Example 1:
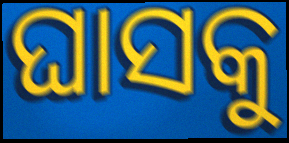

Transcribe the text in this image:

ଘାସକୁ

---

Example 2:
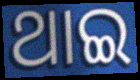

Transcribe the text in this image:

ଥାଇ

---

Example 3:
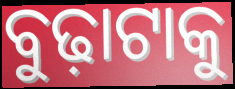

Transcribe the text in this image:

ବୁଢ଼ାଟାକୁ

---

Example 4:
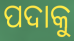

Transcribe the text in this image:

ପଦାକୁ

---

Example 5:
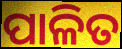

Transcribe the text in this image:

ପାଳିତ